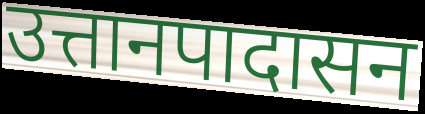
उत्तानपादासन